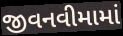
જીવનવીમામાં